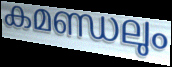
കമണ്ഡലും